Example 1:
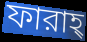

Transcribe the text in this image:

ফারাহ্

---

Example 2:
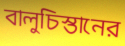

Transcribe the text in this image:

বালুচিস্তানের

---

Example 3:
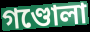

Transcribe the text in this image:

গণ্ডোলা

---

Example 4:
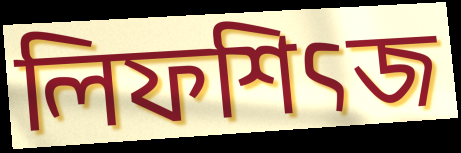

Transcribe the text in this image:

লিফশিৎজ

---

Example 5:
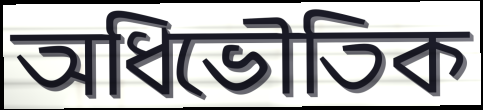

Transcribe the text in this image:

অধিভৌতিক